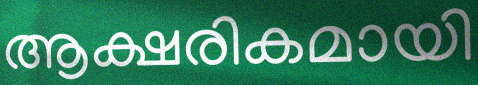
ആക്ഷരികമായി